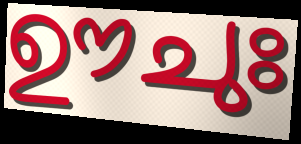
ഊചുഃ